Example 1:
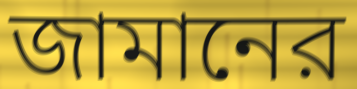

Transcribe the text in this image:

জামানের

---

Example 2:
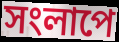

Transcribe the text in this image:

সংলাপে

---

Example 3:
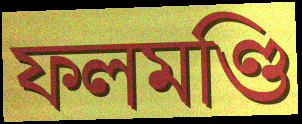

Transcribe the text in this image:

ফলমণ্ডি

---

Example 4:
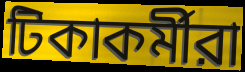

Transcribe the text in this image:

টিকাকর্মীরা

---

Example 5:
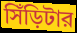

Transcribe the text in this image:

সিঁড়িটার